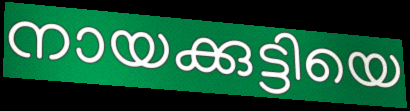
നായക്കുട്ടിയെ